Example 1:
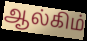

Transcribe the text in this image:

ஆல்கிம்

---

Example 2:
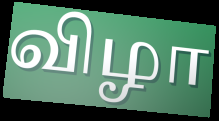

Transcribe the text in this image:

விழா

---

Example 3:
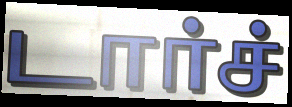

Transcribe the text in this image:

டார்ச்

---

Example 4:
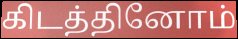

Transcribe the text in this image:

கிடத்தினோம்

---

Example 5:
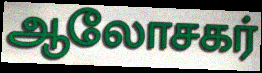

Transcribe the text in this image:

ஆலோசகர்